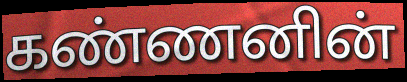
கண்ணனின்